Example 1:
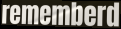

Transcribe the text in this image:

rememberd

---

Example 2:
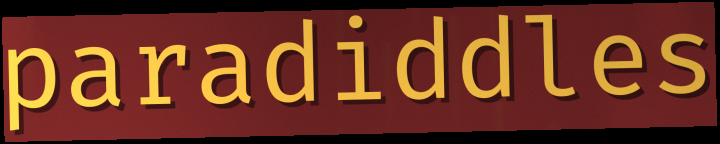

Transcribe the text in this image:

paradiddles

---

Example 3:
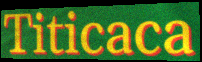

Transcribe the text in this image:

Titicaca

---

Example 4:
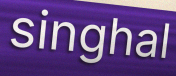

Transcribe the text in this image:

singhal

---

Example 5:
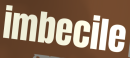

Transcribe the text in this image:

imbecile